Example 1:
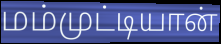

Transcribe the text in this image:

மம்முட்டியான்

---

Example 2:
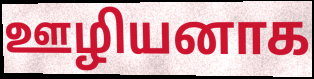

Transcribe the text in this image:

ஊழியனாக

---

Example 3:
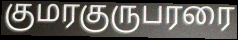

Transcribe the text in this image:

குமரகுருபரரை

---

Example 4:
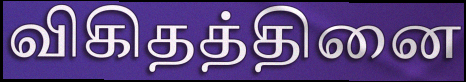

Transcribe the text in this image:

விகிதத்தினை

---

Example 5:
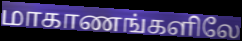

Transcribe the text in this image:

மாகாணங்களிலே